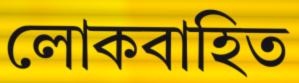
লোকবাহিত